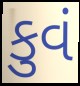
કુવં